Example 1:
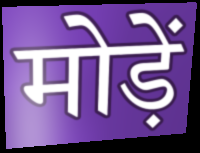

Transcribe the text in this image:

मोड़ें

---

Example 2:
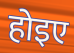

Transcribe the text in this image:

होइए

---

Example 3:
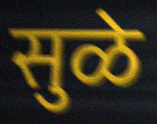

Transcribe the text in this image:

सुळे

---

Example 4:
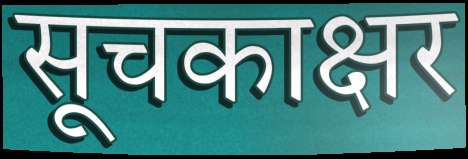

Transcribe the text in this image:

सूचकाक्षर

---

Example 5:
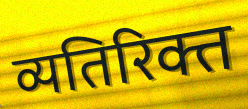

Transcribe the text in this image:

व्यतिरिक्त